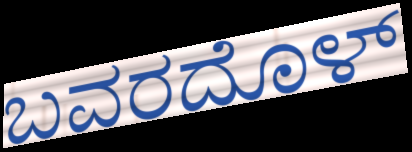
ಬವರದೊಳ್